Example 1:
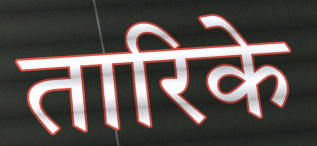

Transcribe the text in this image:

तारिके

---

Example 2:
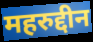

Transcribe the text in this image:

महरुद्दीन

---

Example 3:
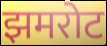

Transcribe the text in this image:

झमरोट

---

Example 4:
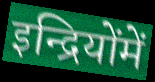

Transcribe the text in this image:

इन्द्रियोंमें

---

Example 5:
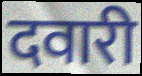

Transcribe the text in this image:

दवारी